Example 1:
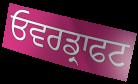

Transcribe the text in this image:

ਓਵਰਡ੍ਰਾਫਟ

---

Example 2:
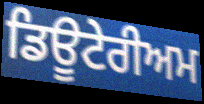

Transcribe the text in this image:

ਡਿਊਟੇਰੀਅਮ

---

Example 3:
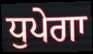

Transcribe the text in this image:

ਧੁਪੇਗਾ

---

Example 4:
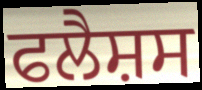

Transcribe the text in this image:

ਫਲੈਸ਼ਸ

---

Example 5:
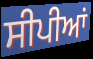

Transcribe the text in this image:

ਸੀਪੀਆਂ